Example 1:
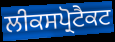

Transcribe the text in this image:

ਲੀਕਸਪ੍ਰੋਟੈਕਟ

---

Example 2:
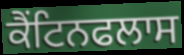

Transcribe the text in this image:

ਕੈਂਟਿਨਫਲਾਸ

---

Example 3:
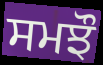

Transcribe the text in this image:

ਸਮਝੌ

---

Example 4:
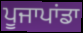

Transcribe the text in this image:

ਪੂਜਾਪਾਂਡਾ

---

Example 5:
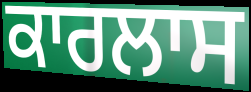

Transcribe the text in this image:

ਕਾਰਲਾਸ